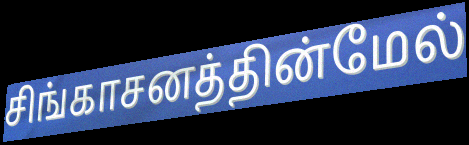
சிங்காசனத்தின்மேல்